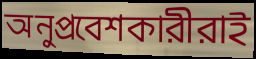
অনুপ্রবেশকারীরাই